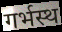
गर्भस्‍थ